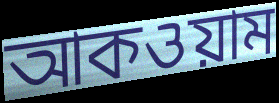
আকওয়াম